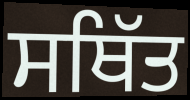
ਸਥਿੱਤ